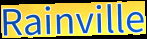
Rainville